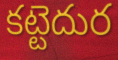
కట్టెదుర